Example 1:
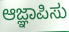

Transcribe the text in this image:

ಆಜ್ಞಾಪಿಸು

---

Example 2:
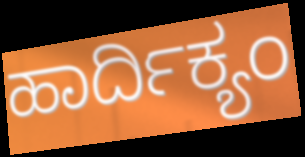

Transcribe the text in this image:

ಹಾರ್ದಿಕ್ಯಂ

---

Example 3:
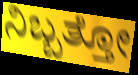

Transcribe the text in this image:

ನಿಬ್ಬತ್ತೋ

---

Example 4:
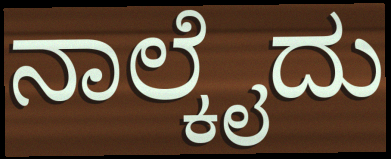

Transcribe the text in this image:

ನಾಲ್ಕೈದು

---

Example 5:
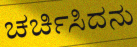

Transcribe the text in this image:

ಚರ್ಚಿಸಿದನು